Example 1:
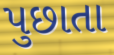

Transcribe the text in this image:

પુછાતા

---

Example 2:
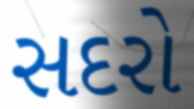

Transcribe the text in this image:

સદરો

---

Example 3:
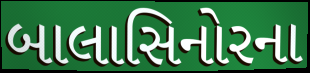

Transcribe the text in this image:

બાલાસિનોરના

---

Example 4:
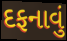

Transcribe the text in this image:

દફનાવું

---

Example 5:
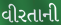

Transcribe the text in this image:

વીરતાની